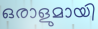
ഒരാളുമായി